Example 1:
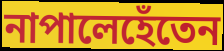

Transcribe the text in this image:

নাপালেহেঁতেন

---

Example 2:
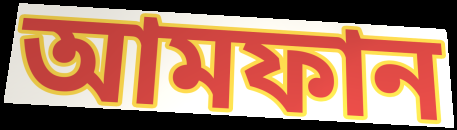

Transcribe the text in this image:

আমফান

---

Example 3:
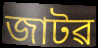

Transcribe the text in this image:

জাটৱ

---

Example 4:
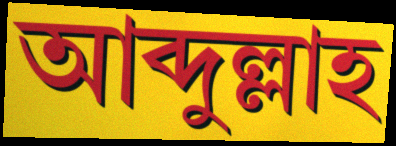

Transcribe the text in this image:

আব্দুল্লাহ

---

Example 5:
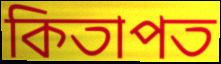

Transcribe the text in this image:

কিতাপত